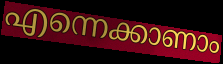
എന്നെക്കാണാം